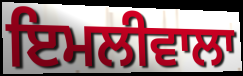
ਇਮਲੀਵਾਲਾ